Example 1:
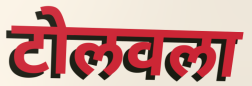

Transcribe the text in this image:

टोलवला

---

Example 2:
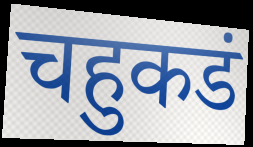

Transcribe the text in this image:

चहुकडं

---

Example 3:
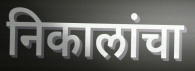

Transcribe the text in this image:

निकालांचा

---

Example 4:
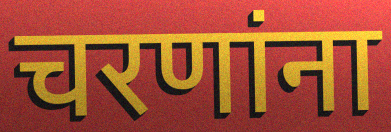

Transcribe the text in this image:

चरणांना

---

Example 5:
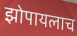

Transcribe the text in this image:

झोपायलाच